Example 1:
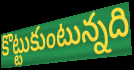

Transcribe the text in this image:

కొట్టుకుంటున్నది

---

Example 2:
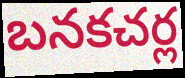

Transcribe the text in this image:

బనకచర్ల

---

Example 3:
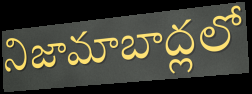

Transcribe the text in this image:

నిజామాబాద్లలో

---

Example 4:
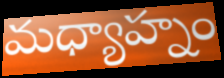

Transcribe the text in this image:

మధ్యాహ్నం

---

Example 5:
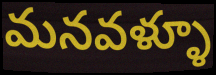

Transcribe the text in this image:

మనవళ్ళూ